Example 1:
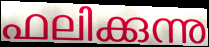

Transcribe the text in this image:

ഫലിക്കുന്നു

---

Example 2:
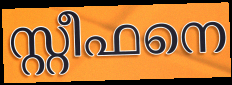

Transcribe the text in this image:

സ്റ്റീഫനെ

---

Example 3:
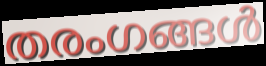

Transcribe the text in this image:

തരംഗങ്ങൾ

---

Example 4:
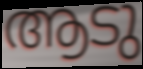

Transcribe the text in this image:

ആടു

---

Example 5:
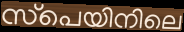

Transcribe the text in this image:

സ്‌പെയിനിലെ